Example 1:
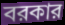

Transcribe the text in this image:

বরকার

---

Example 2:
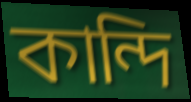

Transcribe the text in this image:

কান্দি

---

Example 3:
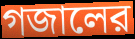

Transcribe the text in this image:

গজালের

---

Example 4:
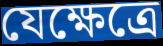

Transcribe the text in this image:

যেক্ষেত্রে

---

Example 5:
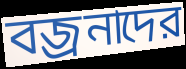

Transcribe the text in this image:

বজ্রনাদের